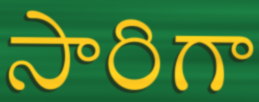
సారిగా